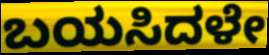
ಬಯಸಿದಳೇ